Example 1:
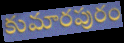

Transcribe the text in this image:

కుమారపురం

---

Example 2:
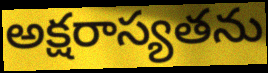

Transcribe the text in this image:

అక్షరాస్యతను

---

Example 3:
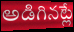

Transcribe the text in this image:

అడిగినట్లే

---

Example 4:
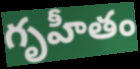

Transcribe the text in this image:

గృహీతం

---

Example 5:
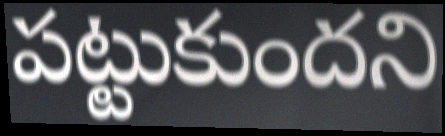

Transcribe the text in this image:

పట్టుకుందని